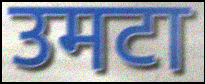
उमटा